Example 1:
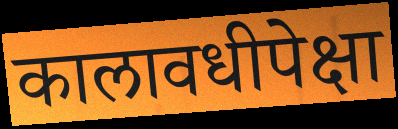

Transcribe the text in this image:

कालावधीपेक्षा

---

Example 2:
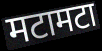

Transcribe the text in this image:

मटामटा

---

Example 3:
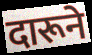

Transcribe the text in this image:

दारूने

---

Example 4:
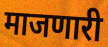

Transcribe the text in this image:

माजणारी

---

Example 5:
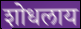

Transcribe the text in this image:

शोधलाय